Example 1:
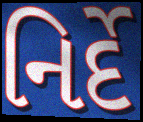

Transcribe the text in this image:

નિર્દે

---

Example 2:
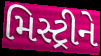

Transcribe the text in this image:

મિસ્ટ્રીને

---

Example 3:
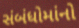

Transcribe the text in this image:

સંબંધોમાંનો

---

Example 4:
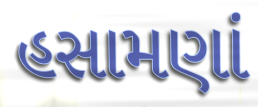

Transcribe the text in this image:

હસામણાં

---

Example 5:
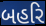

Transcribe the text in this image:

બહરિ